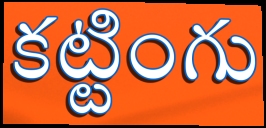
కట్టింగు